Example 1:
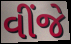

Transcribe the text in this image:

વીંજે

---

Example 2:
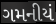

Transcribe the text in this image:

ગમનીયં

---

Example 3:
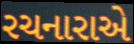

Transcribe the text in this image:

રચનારાએ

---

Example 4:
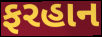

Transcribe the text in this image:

ફરહાન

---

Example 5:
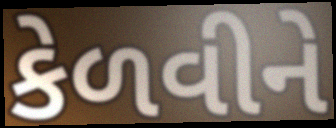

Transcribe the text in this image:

કેળવીને